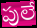
పులే